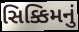
સિક્કિમનું